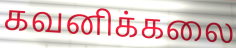
கவனிக்கலை